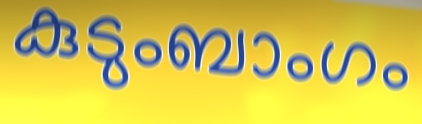
കുടുംബാംഗം